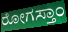
ರೋಗಸ್ತಾಂ